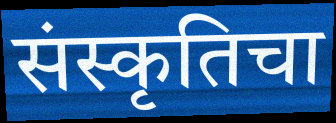
संस्कृतिचा